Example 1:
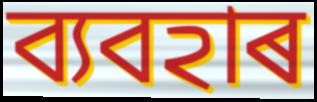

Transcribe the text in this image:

ব্যবহাৰ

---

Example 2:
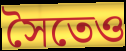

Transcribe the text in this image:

সৈতেও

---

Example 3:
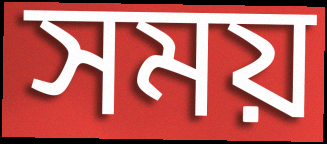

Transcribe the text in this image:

সময়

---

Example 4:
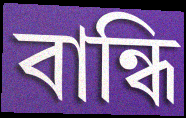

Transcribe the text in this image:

বান্ধি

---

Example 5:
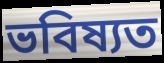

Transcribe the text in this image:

ভবিষ্যত